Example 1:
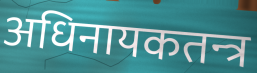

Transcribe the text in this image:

अधिनायकतन्त्र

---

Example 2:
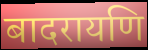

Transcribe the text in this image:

बादरायणि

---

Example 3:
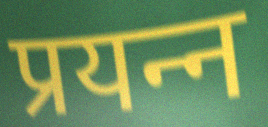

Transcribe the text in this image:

प्रयन्न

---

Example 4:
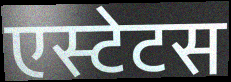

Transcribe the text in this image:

एस्टेटस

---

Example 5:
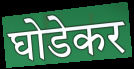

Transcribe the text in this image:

घोडेकर